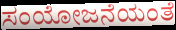
ಸಂಯೋಜನೆಯಂತೆ